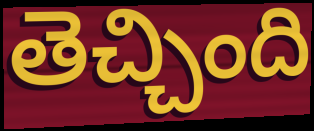
తెచ్చింది